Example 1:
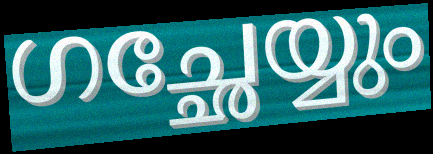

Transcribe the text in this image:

ഗച്ഛേയ്യും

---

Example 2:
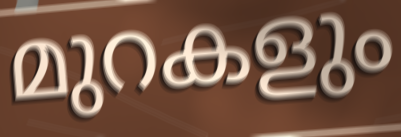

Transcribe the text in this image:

മുറകളും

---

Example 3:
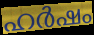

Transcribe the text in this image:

ഹർഷം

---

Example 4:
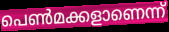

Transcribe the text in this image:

പെൺമക്കളാണെന്ന്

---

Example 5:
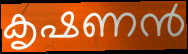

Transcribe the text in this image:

കൃഷണൻ